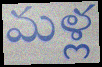
మళ్ల